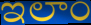
ఇలాం